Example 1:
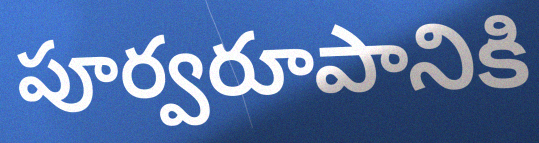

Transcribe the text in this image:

పూర్వరూపానికి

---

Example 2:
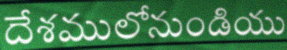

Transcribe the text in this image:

దేశములోనుండియు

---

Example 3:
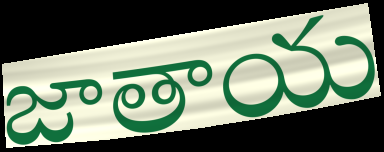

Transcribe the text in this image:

జాతాయ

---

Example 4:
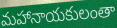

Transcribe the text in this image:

మహానాయకులంతా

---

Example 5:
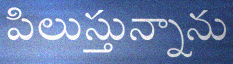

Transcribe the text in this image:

పిలుస్తున్నాను